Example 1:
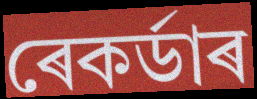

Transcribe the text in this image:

ৰেকৰ্ডাৰ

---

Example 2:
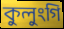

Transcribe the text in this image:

কুলুংগি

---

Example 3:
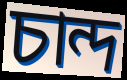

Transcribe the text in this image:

চান্দ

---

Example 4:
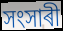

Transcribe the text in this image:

সংসাৰী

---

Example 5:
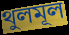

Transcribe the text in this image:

থুলমূল